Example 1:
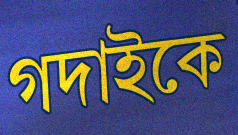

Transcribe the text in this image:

গদাইকে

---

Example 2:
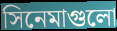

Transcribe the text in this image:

সিনেমাগুলো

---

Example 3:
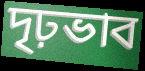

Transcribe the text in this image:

দৃঢ়ভাব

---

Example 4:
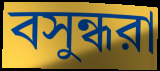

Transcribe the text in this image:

বসুন্ধরা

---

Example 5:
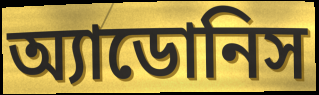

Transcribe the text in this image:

অ্যাডোনিস